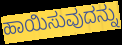
ಹಾಯಿಸುವುದನ್ನು